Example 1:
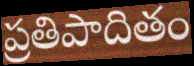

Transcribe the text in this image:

ప్రతిపాదితం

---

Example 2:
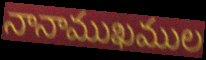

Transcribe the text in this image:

నానాముఖముల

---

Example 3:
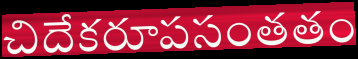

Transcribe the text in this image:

చిదేకరూపసంతతం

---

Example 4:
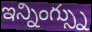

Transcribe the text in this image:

ఇన్నింగ్స్ను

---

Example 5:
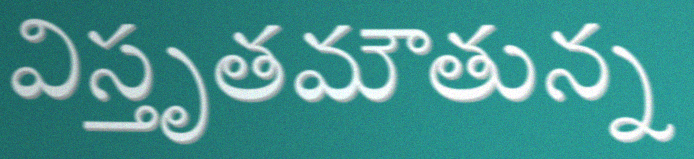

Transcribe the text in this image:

విస్తృతమౌతున్న